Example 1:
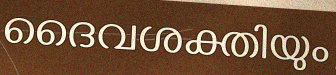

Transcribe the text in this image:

ദൈവശക്തിയും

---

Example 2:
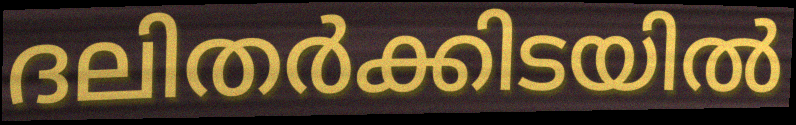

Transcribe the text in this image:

ദലിതർക്കിടയിൽ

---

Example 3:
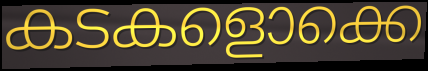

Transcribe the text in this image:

കടകളൊക്കെ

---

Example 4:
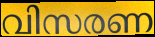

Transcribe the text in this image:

വിസരണ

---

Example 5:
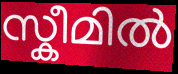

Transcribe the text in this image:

സ്കീമിൽ